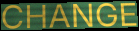
CHANGE